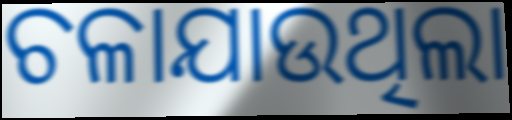
ଚଳାଯାଉଥିଲା